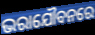
ଭରାଯୌବନରେ